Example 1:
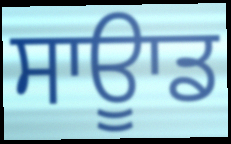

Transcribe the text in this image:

ਸਾਊਾਡ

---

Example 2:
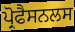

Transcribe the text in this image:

ਪ੍ਰੋਫੈਸਨਲਸ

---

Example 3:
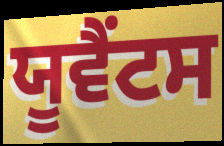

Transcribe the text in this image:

ਯੂਵੈਂਟਸ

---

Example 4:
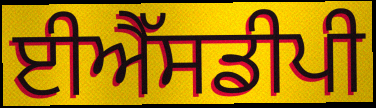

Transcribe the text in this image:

ਈਐੱਸਡੀਪੀ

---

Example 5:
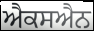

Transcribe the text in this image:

ਐਕਸਐਨ